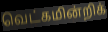
வெட்கமின்றிக்